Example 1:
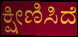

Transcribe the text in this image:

ಕ್ಷೀಣಿಸಿದೆ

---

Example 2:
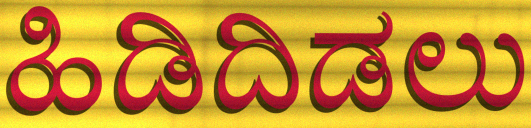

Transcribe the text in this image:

ಹಿಡಿದಿಡಲು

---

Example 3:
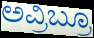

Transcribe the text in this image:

ಅವ್ರಿಬ್ರೂ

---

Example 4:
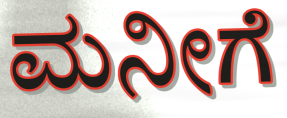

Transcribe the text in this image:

ಮನೀಗೆ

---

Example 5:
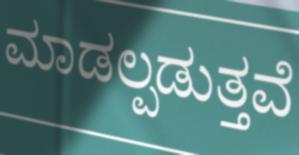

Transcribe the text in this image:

ಮಾಡಲ್ಪಡುತ್ತವೆ